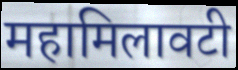
महामिलावटी